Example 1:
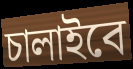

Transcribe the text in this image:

চালাইবে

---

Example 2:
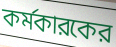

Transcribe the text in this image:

কর্মকারকের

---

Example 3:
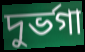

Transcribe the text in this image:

দুর্ভগা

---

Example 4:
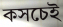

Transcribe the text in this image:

কসচেই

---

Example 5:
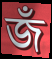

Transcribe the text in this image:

জঁ